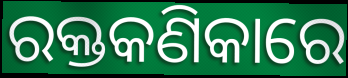
ରକ୍ତକଣିକାରେ